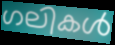
ഗലികൾ